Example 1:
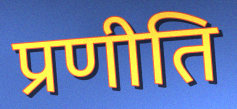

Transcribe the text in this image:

प्रणीति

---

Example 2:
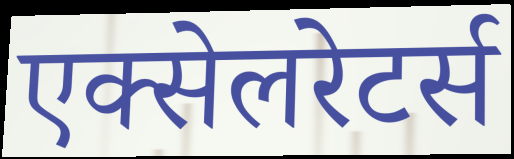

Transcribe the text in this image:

एक्सेलरेटर्स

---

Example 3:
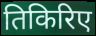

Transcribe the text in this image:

तिकिरिए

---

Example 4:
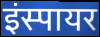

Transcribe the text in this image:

इंस्पायर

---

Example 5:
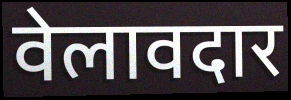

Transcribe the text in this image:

वेलावदार